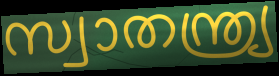
സ്വാതന്ത്ര്യ